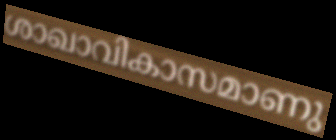
ശാഖാവികാസമാണു